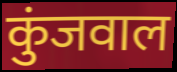
कुंजवाल